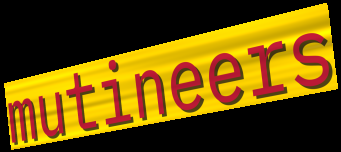
mutineers